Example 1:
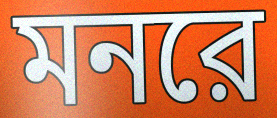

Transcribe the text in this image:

মনরে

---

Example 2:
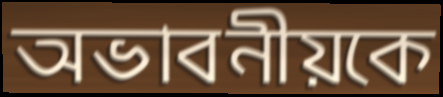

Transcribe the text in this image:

অভাবনীয়কে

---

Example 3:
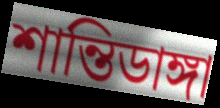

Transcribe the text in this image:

শান্তিডাঙ্গা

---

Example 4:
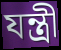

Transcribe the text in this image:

যন্ত্রী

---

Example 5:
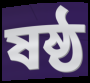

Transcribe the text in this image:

ষষ্ঠ